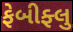
ફેબીફ્લુ